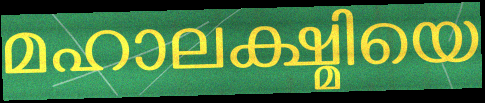
മഹാലക്ഷ്മിയെ